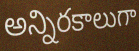
అన్నిరకాలుగా